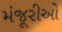
મંજૂરીઓ